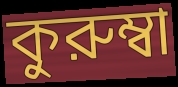
কুৰুম্বা